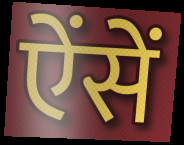
ऐंसें